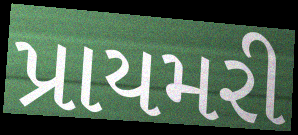
પ્રાયમરી